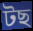
টছ